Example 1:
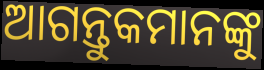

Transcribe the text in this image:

ଆଗନ୍ତୁକମାନଙ୍କୁ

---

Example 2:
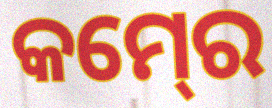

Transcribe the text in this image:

କମ୍‍ରେ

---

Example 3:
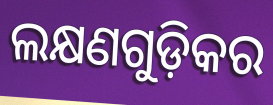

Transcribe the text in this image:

ଲକ୍ଷଣଗୁଡ଼ିକର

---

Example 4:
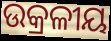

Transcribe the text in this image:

ଉକ୍ରଳୀୟ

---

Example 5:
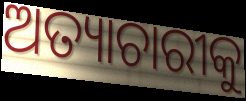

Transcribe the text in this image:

ଅତ୍ୟାଚାରୀକୁ